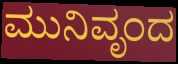
ಮುನಿವೃಂದ